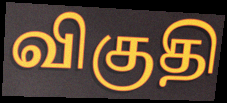
விகுதி